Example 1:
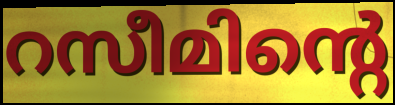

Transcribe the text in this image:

റസീമിന്റെ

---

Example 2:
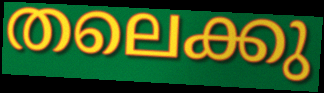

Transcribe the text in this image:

തലെക്കു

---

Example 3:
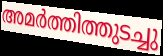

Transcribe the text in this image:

അമർത്തിത്തുടച്ചു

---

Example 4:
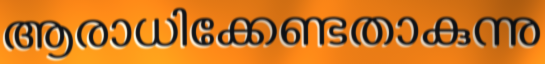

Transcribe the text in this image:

ആരാധിക്കേണ്ടതാകുന്നു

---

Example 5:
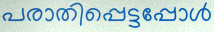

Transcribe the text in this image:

പരാതിപ്പെട്ടപ്പോൾ